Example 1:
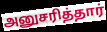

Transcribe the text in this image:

அனுசரித்தார்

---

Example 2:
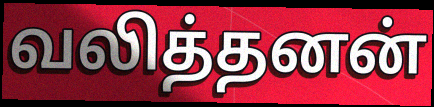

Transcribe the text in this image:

வலித்தனன்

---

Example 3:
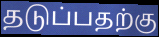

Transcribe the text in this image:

தடுப்பதற்கு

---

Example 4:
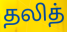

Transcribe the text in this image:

தலித்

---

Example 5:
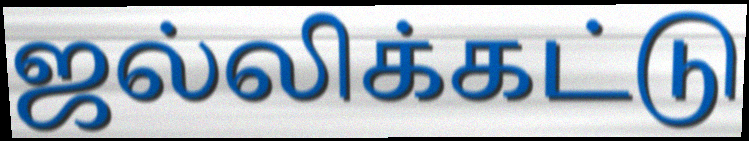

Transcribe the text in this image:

ஜல்லிக்கட்டு